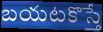
బయటకొస్తే